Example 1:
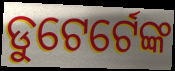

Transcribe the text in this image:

ଡୁଟେର୍ଟେଙ୍କ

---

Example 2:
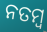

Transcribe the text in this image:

ନତମ୍ବ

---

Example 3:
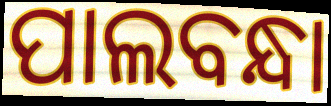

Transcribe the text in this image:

ପାଲବନ୍ଧା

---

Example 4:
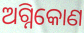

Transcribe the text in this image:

ଅଗ୍ନିକୋଣ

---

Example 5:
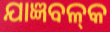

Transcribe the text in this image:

ଯାଜ୍ଞବଳ୍‍କ